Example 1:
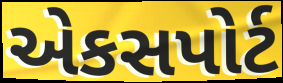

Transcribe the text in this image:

એકસપોર્ટ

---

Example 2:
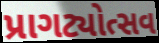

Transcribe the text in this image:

પ્રાગટ્યોત્સવ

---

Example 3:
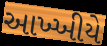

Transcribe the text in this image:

આખ્ખીયે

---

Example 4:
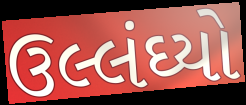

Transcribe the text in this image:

ઉલ્લંઘ્યો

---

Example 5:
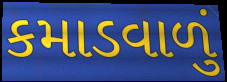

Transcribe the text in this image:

કમાડવાળું